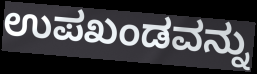
ಉಪಖಂಡವನ್ನು